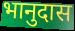
भानुदास